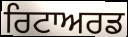
ਰਿਟਾਅਰਡ